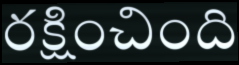
రక్షించింది